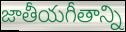
జాతీయగీతాన్ని